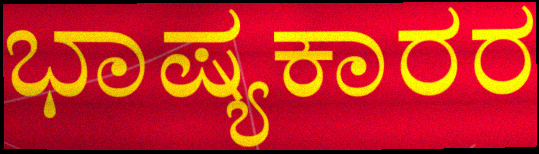
ಭಾಷ್ಯಕಾರರ